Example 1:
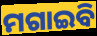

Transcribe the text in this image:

ମଗାଇବି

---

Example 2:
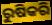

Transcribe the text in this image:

ରୁଷିକରି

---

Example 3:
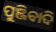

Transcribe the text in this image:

ପୁଞ୍ଜିବାଦି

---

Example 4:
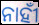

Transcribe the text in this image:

ନାହୀଁ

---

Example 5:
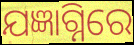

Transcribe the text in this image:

ଯଜ୍ଞାଗ୍ନିରେ